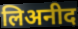
लिअनीद